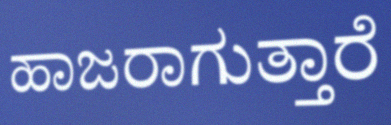
ಹಾಜರಾಗುತ್ತಾರೆ